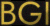
BGI